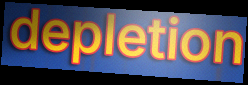
depletion